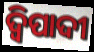
ଦ୍ୱିପାଦୀ